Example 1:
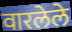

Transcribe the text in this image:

वारलेले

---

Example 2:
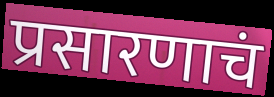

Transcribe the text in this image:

प्रसारणाचं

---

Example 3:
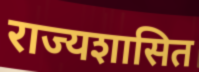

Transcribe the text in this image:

राज्यशासित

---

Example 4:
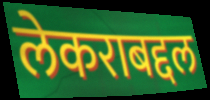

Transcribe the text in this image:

लेकराबद्दल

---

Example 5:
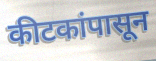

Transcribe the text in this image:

कीटकांपासून